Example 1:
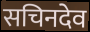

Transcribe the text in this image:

सचिनदेव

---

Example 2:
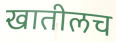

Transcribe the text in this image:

खातीलच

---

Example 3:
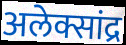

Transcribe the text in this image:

अलेक्सांद्र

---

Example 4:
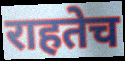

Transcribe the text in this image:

राहतेच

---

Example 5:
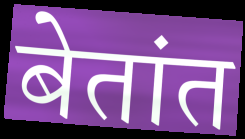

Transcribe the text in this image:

बेतांत